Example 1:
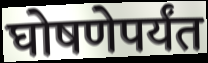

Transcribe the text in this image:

घोषणेपर्यंत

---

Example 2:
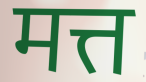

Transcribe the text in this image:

मत्त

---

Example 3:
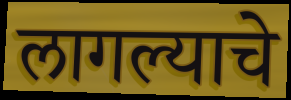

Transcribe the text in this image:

लागल्याचे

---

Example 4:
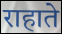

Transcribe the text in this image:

राहाते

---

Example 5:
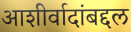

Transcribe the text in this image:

आशीर्वादांबद्दल